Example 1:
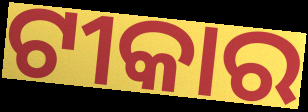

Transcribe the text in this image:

ଟୀକାର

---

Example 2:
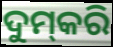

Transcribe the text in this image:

ଦୁମ୍‍କରି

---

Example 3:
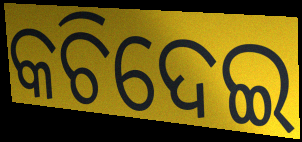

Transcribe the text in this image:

କଚିଦେଇ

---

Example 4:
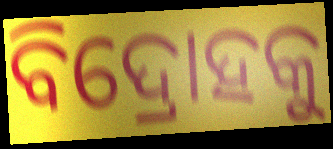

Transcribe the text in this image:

ବିଦ୍ରୋହକୁ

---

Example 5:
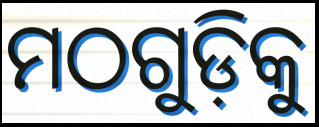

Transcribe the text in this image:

ମଠଗୁଡ଼ିକୁ